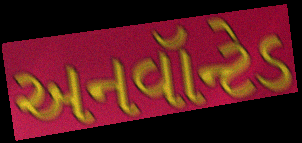
અનવૉન્ટેડ